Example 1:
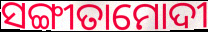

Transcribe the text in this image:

ସଙ୍ଗୀତାମୋଦୀ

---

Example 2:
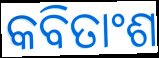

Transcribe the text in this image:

କବିତାଂଶ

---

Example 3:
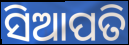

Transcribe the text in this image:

ସିଆପତି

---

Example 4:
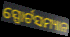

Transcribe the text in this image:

ସ୍ପୋର୍ଟସମ୍ୟାନ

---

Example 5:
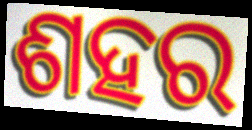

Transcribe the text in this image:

ଶହର